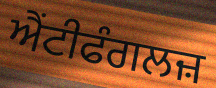
ਐਂਟੀਫੰਗਲਜ਼